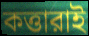
কত্তারাই